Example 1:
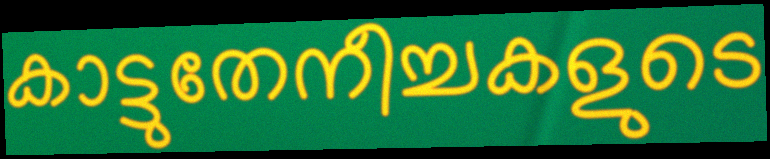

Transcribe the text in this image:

കാട്ടുതേനീച്ചകളുടെ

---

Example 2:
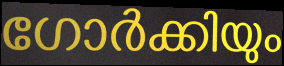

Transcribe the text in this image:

ഗോർക്കിയും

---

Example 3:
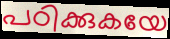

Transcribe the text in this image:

പഠിക്കുകയേ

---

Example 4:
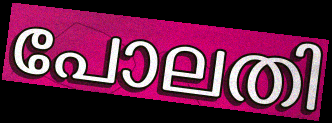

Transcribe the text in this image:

പോലതി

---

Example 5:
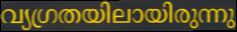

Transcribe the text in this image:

വ്യഗ്രതയിലായിരുന്നു